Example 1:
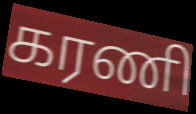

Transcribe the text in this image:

கரணி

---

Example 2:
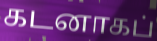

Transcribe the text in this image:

கடனாகப்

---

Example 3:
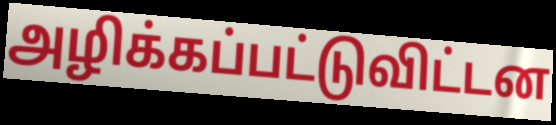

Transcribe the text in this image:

அழிக்கப்பட்டுவிட்டன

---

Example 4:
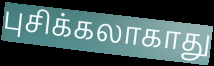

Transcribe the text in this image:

புசிக்கலாகாது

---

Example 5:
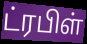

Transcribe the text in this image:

ட்ரபிள்